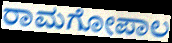
ರಾಮಗೋಪಾಲ